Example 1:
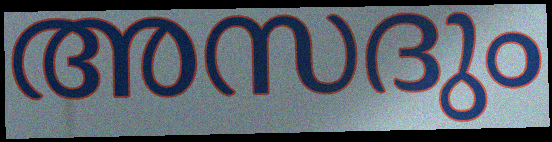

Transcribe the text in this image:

അസദും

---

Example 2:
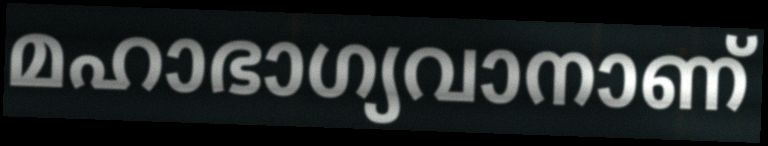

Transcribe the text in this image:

മഹാഭാഗ്യവാനാണ്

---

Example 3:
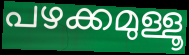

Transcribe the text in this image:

പഴക്കമുള്ളൂ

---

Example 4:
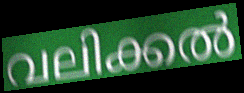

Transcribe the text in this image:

വലിക്കൽ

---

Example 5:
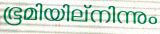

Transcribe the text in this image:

ഭൂമിയില്നിന്നും